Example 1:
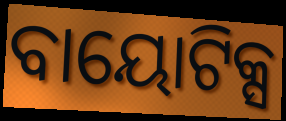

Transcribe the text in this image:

ବାୟୋଟିକ୍ସ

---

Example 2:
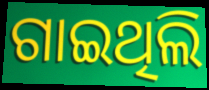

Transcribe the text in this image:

ଗାଇଥିଲି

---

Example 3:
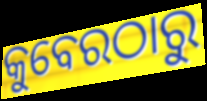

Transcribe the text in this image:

କୁବେରଠାରୁ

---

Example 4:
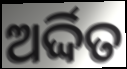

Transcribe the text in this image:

ଅର୍ଦ୍ଦିତ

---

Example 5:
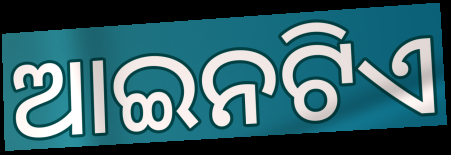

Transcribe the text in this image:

ଆଇନଟିଏ